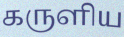
கருளிய